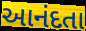
આનંદતા